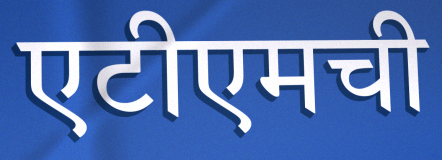
एटीएमची